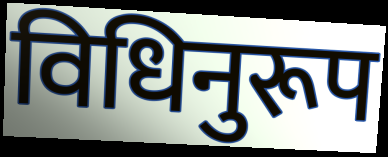
विधिनुरूप